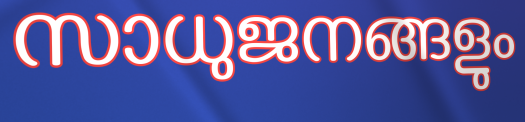
സാധുജനങ്ങളും